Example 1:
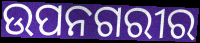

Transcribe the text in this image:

ଉପନଗରୀର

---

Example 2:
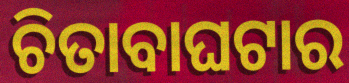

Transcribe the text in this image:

ଚିତାବାଘଟାର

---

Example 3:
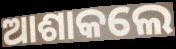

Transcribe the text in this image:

ଆଶାକଲେ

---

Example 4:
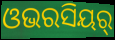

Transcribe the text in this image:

ଓଭରସିୟର୍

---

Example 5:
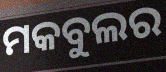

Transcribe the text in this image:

ମକବୁଲର